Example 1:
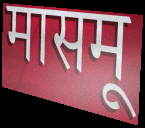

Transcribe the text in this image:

मासमू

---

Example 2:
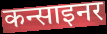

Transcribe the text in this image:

कन्साइनर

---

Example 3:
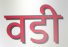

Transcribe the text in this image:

वडी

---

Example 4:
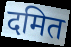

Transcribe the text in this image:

दमित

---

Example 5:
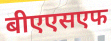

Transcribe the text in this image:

बीएएसएफ